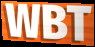
WBT